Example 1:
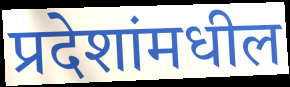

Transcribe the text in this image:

प्रदेशांमधील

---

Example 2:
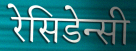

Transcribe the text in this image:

रेसिडेन्सी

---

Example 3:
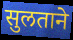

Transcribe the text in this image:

सुलताने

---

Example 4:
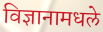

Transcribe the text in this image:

विज्ञानामधले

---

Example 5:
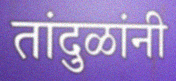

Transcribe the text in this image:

तांदुळांनी